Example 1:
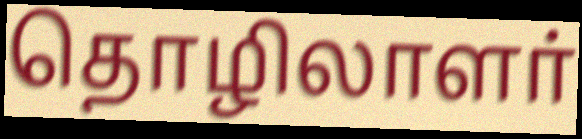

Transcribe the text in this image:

தொழிலாளர்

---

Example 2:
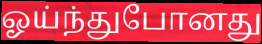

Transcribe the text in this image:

ஓய்ந்துபோனது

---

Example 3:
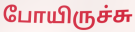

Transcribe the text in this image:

போயிருச்சு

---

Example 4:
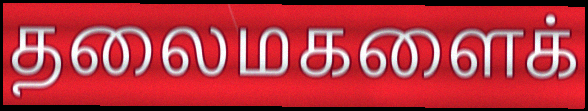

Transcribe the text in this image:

தலைமகளைக்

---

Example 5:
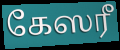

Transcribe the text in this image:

கேஸரீ